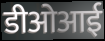
डीओआई